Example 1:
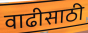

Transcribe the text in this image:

वाढीसाठी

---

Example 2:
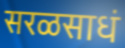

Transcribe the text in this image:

सरळसाधं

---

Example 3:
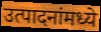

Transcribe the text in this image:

उत्पादनांमध्ये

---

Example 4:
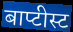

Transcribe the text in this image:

बाप्टीस्ट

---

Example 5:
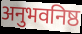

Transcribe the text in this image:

अनुभवनिष्ठ